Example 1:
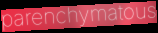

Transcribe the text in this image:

parenchymatous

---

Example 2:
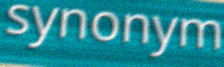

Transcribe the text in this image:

synonym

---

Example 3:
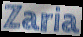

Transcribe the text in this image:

Zaria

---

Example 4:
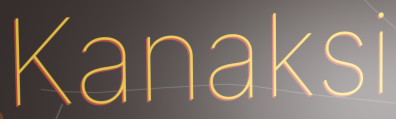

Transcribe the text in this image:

Kanaksi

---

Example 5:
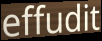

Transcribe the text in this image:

effudit